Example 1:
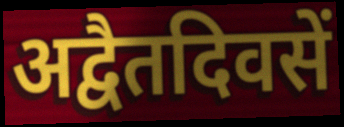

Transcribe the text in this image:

अद्वैतदिवसें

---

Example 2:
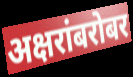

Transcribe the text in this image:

अक्षरांबरोबर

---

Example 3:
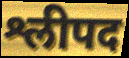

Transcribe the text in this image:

श्लीपद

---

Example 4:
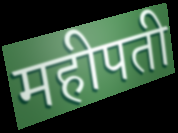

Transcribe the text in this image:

महीपती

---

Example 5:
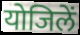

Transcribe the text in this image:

योजिलें